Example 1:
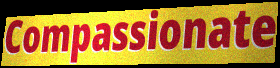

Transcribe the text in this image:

Compassionate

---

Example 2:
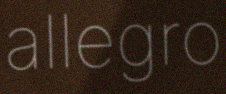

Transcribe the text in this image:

allegro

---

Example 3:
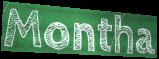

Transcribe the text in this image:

Montha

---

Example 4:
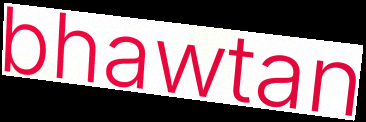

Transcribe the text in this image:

bhawtan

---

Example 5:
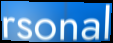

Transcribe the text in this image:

rsonal